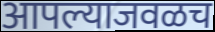
आपल्याजवळच